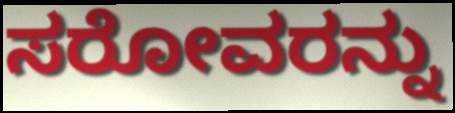
ಸರೋವರನ್ನು